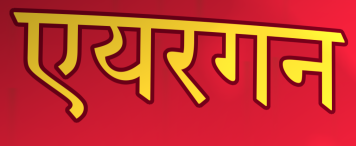
एयरगन